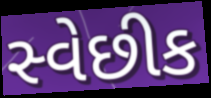
સ્વેછીક